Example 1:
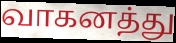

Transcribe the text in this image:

வாகனத்து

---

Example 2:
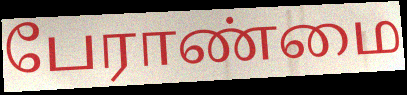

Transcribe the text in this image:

பேராண்மை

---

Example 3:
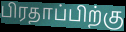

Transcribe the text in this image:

பிரதாப்பிற்கு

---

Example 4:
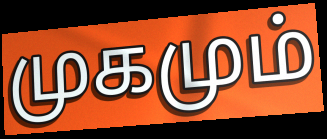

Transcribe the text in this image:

முகமும்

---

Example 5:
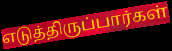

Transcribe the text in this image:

எடுத்திருப்பார்கள்